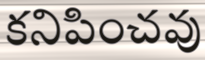
కనిపించవు